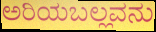
ಅರಿಯಬಲ್ಲವನು